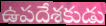
ఉపదేశకుడు